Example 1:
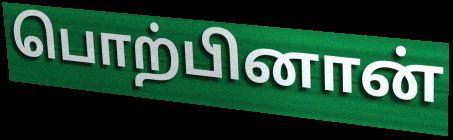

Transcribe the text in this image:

பொற்பினான்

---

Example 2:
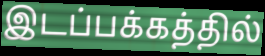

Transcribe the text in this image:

இடப்பக்கத்தில்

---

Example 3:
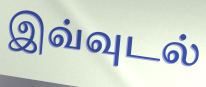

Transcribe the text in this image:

இவ்வுடல்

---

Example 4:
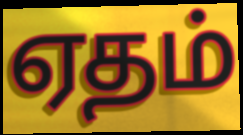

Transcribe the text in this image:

ஏதம்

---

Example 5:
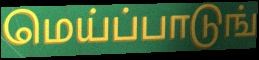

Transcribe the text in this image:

மெய்ப்பாடுங்